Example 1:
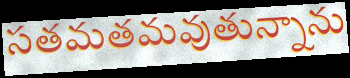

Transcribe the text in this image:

సతమతమవుతున్నాను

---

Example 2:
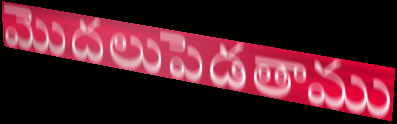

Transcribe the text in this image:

మొదలుపెడతాము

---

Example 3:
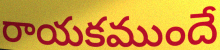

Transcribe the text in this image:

రాయకముందే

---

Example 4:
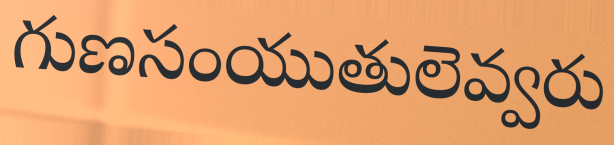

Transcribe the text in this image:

గుణసంయుతులెవ్వరు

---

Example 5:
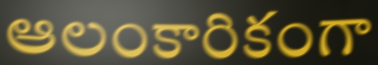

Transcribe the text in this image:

ఆలంకారికంగా